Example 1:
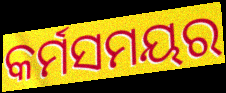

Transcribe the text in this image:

କର୍ମସମୟର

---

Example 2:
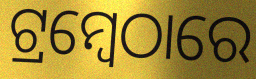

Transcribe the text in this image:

ଟ୍ରମ୍ବେଠାରେ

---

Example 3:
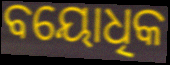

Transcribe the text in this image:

ବୟୋଧିକ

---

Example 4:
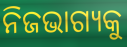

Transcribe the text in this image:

ନିଜଭାଗ୍ୟକୁ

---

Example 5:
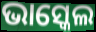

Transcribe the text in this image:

ଭାସ୍କେଲ